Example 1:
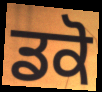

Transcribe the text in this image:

ਡਕੋ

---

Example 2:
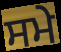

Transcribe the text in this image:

ਸਮੇ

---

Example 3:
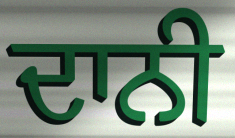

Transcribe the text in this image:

ਦਾਨੀ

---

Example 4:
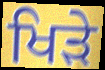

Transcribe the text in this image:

ਖਿੜੇ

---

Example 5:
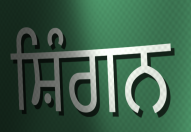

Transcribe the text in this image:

ਸ਼ਿੰਗਨ